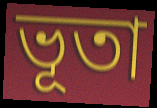
ভূতা